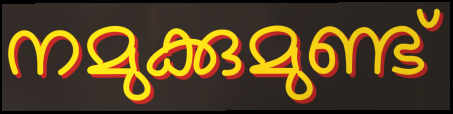
നമുക്കുമുണ്ട്